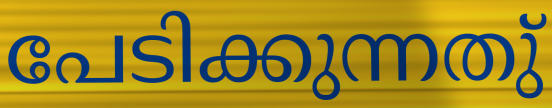
പേടിക്കുന്നതു്